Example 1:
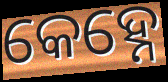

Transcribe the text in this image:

କେହ୍ନେ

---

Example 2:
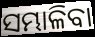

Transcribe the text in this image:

ସମ୍ଭାଳିବା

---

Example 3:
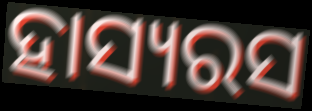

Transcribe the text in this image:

ହାସ୍ୟରସ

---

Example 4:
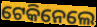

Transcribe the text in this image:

ଟେକିନେଲେ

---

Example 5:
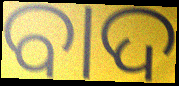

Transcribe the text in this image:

ବାଦ